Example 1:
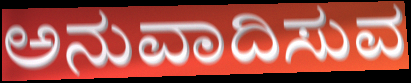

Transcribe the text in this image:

ಅನುವಾದಿಸುವ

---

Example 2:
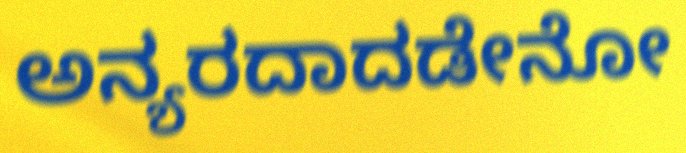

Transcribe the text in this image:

ಅನ್ಯರದಾದಡೇನೋ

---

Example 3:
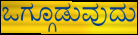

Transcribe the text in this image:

ಒಗ್ಗೂಡುವುದು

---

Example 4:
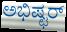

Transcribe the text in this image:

ಅಭಿಷ್ಟರ್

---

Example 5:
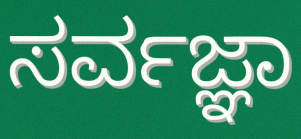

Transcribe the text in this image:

ಸರ್ವಜ್ಞಾ